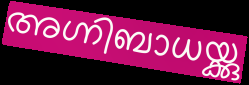
അഗ്നിബാധയ്ക്കു